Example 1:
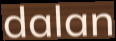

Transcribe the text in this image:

dalan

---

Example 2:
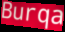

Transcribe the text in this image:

Burqa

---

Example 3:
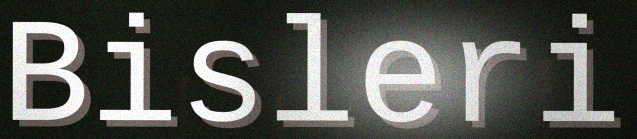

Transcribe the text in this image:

Bisleri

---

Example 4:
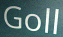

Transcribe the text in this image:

Goll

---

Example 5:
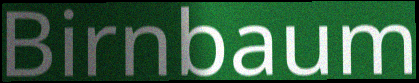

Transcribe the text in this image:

Birnbaum